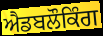
ਐਡਬਲੌਕਿੰਗ